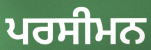
ਪਰਸੀਮਨ